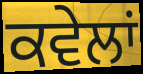
ਕਵੇਲਾਂ